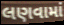
લણવામાં